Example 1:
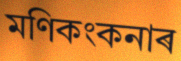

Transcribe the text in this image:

মণিকংকনাৰ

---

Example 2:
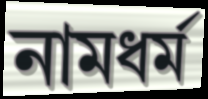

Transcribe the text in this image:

নামধৰ্ম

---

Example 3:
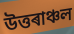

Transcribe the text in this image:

উত্তৰাঞ্চল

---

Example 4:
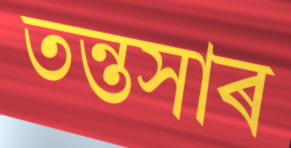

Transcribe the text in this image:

তন্তসাৰ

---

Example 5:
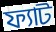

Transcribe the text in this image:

ফ্যাট